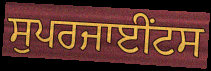
ਸੁਪਰਜਾਈਂਟਸ